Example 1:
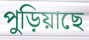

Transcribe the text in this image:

পুড়িয়াছে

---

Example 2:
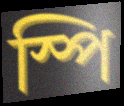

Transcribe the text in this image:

স্পি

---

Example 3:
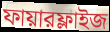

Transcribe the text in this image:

ফায়ারফ্লাইজ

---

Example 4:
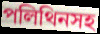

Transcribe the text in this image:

পলিথিনসহ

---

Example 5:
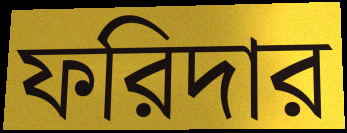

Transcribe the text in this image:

ফরিদার